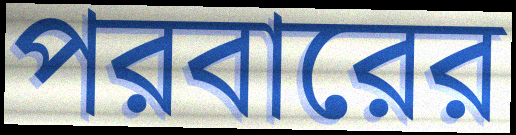
পরবারের